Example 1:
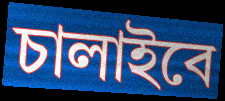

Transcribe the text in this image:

চালাইবে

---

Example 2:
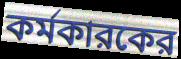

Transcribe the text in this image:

কর্মকারকের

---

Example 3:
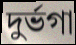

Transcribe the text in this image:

দুর্ভগা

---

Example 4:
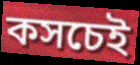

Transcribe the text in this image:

কসচেই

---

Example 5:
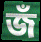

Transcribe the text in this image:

জঁ